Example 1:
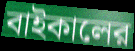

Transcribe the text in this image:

বাইকালের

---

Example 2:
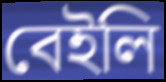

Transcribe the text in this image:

বেইলি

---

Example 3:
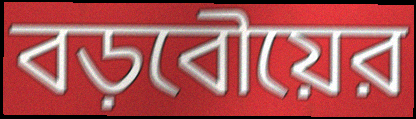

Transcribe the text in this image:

বড়বৌয়ের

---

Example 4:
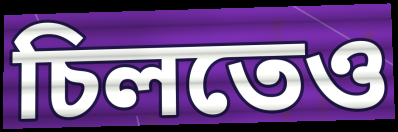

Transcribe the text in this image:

চিলতেও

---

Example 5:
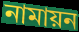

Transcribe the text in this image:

নামায়ন